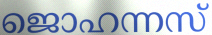
ജൊഹന്നസ്